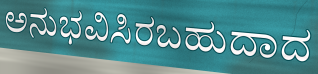
ಅನುಭವಿಸಿರಬಹುದಾದ